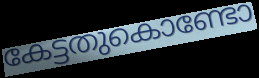
കേട്ടതുകൊണ്ടോ